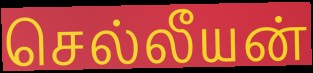
செல்லீயன்